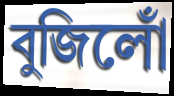
বুজিলোঁ